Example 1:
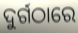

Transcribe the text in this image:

ଦୁର୍ଗଠାରେ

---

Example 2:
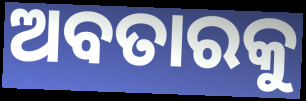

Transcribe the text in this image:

ଅବତାରକୁ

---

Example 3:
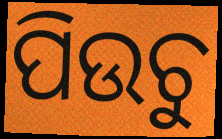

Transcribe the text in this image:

ପିଉଚୁ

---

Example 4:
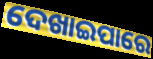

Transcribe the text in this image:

ଦେଖାଇପାରେ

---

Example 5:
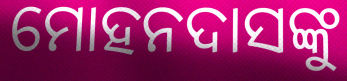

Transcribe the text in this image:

ମୋହନଦାସଙ୍କୁ